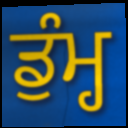
ਡੁੰਮ੍ਹ